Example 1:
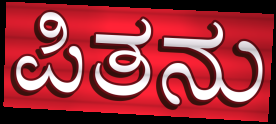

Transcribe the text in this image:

ಪಿತನು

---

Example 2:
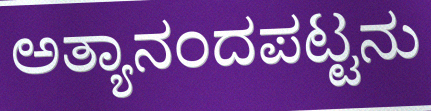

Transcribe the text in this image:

ಅತ್ಯಾನಂದಪಟ್ಟನು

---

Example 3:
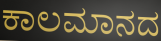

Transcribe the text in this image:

ಕಾಲಮಾನದ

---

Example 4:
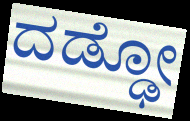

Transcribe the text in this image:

ದಡ್ಢೋ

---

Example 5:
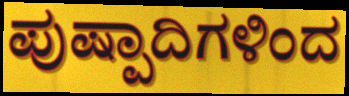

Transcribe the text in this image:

ಪುಷ್ಪಾದಿಗಳಿಂದ